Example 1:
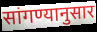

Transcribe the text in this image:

सांगण्यानुसार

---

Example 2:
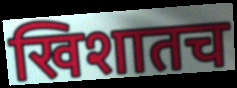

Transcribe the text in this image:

खिशातच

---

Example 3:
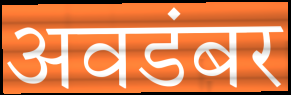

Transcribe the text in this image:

अवडंबर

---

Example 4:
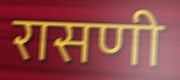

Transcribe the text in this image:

रासणी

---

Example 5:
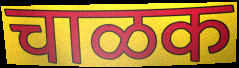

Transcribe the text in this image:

चाळक